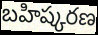
బహిష్కరణ